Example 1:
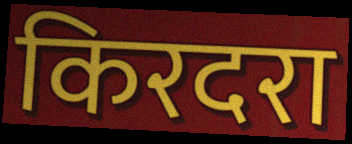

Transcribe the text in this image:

किरदरा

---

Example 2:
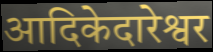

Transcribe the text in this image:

आदिकेदारेश्वर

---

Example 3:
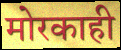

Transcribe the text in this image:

मोरकाही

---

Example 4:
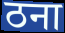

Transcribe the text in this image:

ठना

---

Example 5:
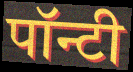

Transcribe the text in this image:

पॉन्टी